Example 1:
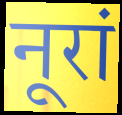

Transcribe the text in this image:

नूरां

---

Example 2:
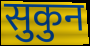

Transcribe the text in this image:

सुकुन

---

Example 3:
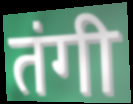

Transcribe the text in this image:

तंगी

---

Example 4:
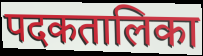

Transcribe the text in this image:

पदकतालिका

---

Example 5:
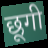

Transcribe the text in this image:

छूगी